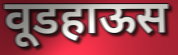
वूडहाऊस